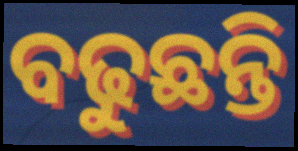
ବଢୁଛନ୍ତି